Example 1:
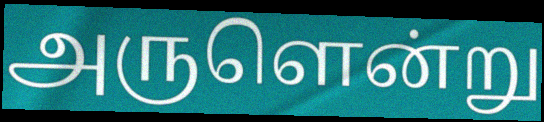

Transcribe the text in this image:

அருளென்று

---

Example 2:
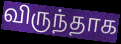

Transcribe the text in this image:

விருந்தாக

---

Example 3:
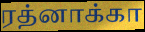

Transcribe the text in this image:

ரத்னாக்கா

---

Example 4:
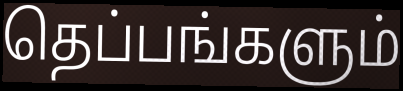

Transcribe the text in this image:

தெப்பங்களும்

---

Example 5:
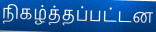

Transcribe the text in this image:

நிகழ்த்தப்பட்டன